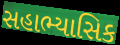
સહાભ્યાસિક